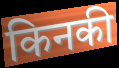
किनकी